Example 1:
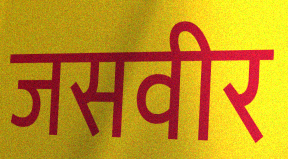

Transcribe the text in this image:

जसवीर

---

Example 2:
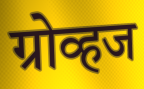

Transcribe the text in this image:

ग्रोव्हज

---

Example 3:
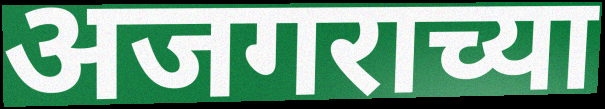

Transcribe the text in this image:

अजगराच्या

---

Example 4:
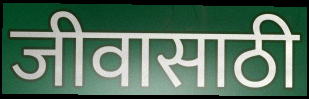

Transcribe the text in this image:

जीवासाठी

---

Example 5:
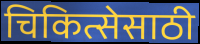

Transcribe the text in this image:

चिकित्सेसाठी